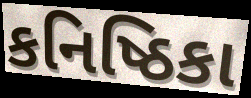
કનિષ્ઠિકા